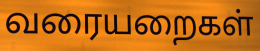
வரையறைகள்